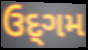
ઉદ્‌ગમ